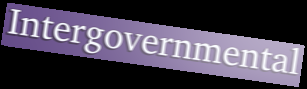
Intergovernmental